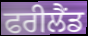
ਫਰੀਲੈਂਡ